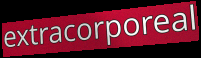
extracorporeal